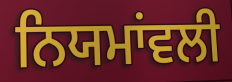
ਨਿਯਮਾਂਵਲੀ